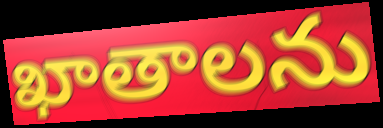
ఖాతాలను